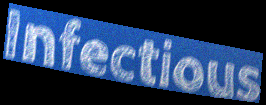
Infectious